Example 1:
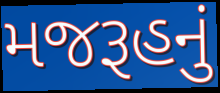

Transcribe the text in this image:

મજરૂહનું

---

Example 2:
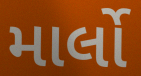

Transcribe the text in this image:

માર્લો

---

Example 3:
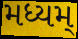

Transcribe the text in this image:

મધ્યમ્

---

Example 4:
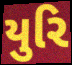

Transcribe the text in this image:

યુરિ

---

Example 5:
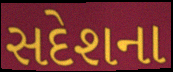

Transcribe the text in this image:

સદેશના